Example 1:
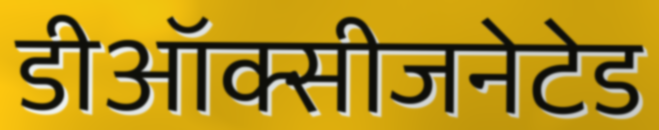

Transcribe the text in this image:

डीऑक्सीजनेटेड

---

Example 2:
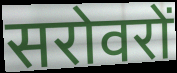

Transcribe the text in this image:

सरोवरों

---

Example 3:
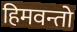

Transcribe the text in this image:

हिमवन्तो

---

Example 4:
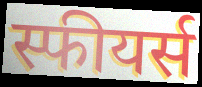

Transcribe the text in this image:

स्फीयर्स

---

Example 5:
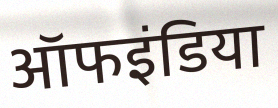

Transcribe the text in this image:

ऑफइंडिया